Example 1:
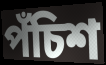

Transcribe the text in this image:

পঁচিশ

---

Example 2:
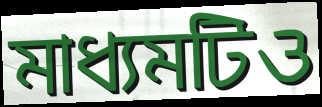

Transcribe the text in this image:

মাধ্যমটিও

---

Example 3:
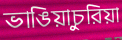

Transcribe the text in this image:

ভাঙিয়াচুরিয়া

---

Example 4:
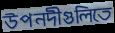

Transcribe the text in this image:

উপনদীগুলিতে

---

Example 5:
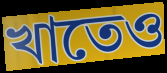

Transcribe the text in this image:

খাতেও